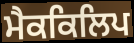
ਮੈਕਕਿਲਿਪ